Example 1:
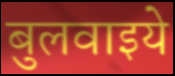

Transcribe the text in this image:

बुलवाइये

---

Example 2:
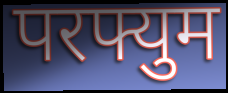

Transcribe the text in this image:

परफ्युम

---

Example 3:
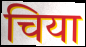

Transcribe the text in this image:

चिया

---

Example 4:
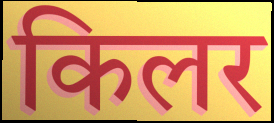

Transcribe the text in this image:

किलर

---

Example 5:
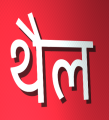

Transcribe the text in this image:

थैल